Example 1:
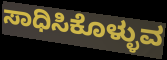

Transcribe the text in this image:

ಸಾಧಿಸಿಕೊಳ್ಳುವ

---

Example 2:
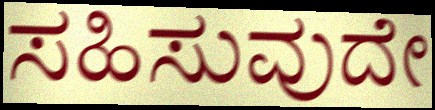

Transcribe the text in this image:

ಸಹಿಸುವುದೇ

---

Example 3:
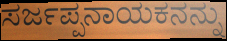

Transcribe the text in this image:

ಸರ್ಜಪ್ಪನಾಯಕನನ್ನು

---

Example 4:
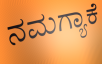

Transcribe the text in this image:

ನಮಗ್ಯಾಕೆ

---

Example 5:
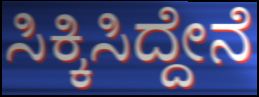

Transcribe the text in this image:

ಸಿಕ್ಕಿಸಿದ್ದೇನೆ